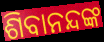
ଶିବାନନ୍ଦଙ୍କ